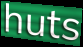
huts